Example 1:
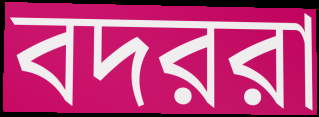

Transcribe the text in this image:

বদররা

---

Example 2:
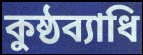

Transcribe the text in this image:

কুষ্ঠব্যাধি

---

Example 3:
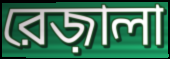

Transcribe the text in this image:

রেজ়ালা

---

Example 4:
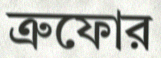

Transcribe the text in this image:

ত্রুফোর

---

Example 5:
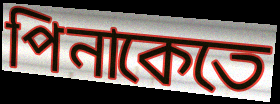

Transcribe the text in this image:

পিনাকেতে